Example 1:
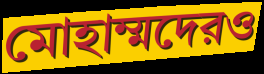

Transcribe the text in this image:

মোহাম্মদেরও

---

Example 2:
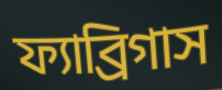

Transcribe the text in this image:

ফ্যাব্রিগাস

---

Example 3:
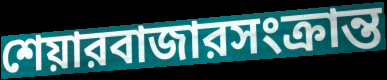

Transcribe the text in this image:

শেয়ারবাজারসংক্রান্ত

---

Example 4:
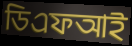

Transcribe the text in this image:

ডিএফআই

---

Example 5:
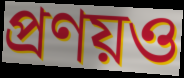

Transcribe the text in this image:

প্রণয়ও